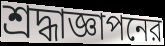
শ্রদ্ধাজ্ঞাপনের